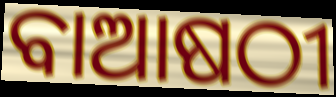
ବାଆଷଠୀ